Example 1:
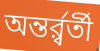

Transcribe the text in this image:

অন্তর্র্বর্তী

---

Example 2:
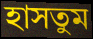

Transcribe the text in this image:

হাসতুম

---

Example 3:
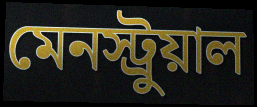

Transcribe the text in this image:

মেনস্ট্রুয়াল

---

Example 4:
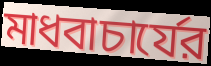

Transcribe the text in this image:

মাধবাচার্যের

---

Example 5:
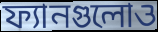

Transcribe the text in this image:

ফ্যানগুলোও